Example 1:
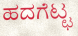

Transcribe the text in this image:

ಹದಗೆಟ್ಟ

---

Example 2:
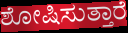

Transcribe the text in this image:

ಶೋಷಿಸುತ್ತಾರೆ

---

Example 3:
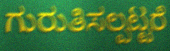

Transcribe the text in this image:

ಗುರುತಿಸಲ್ಪಟ್ಟರೆ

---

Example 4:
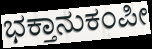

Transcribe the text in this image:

ಭಕ್ತಾನುಕಂಪೀ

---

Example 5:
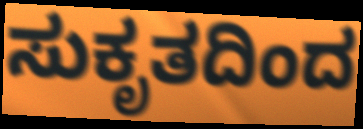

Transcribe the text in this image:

ಸುಕೃತದಿಂದ